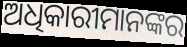
ଅଧିକାରୀମାନଙ୍କର